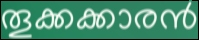
തൂക്കക്കാരൻ